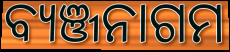
ବ୍ୟଞ୍ଜନାଗମ